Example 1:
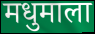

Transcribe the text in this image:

मधुमाला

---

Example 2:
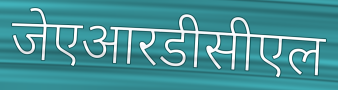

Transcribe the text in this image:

जेएआरडीसीएल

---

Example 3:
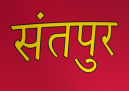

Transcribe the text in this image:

संतपुर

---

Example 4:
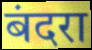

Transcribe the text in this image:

बंदरा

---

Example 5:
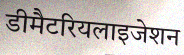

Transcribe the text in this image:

डीमैटरियलाइजेशन